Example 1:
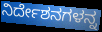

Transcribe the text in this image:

ನಿರ್ದೇಶನಗಳನ್ನ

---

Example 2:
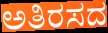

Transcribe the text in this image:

ಅತಿರಸದ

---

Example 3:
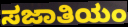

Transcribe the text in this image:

ಸಜಾತಿಯಂ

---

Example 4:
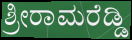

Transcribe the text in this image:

ಶ್ರೀರಾಮರೆಡ್ಡಿ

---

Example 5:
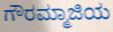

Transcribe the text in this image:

ಗೌರಮ್ಮಾಜಿಯ